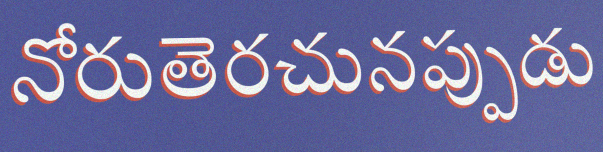
నోరుతెరచునప్పుడు